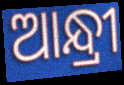
ଆନ୍ଧ୍ରୀ